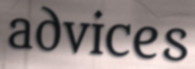
advices